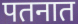
पतनात